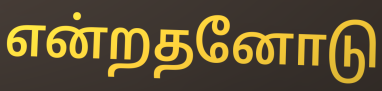
என்றதனோடு